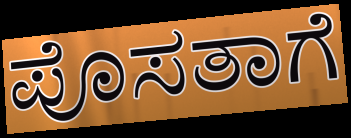
ಪೊಸತಾಗೆ